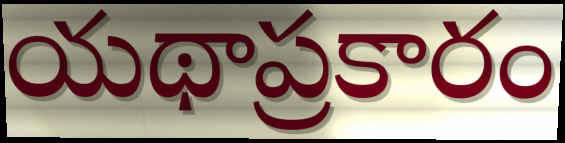
యథాప్రకారం